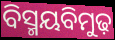
ବିସ୍ମୟବିମୁଢ଼